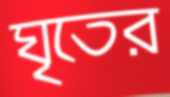
ঘৃতের